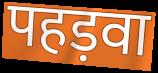
पहड़वा